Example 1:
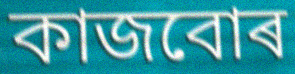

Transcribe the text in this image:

কাজবোৰ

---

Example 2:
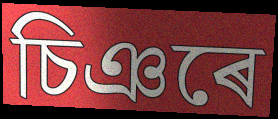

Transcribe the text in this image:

চিঞৰে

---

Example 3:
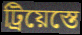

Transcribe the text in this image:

ট্ৰিয়েস্তে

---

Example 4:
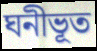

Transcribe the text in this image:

ঘনীভূত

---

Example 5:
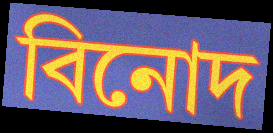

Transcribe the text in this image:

বিনোদ